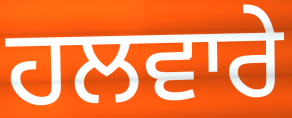
ਹਲਵਾਰੇ